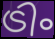
ട്രിം